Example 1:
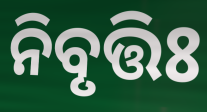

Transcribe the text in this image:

ନିବୃତ୍ତିଃ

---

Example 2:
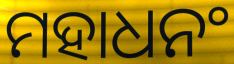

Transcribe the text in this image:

ମହାଧନଂ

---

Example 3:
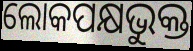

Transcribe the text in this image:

ଲୋକପକ୍ଷଭୁକ୍ତ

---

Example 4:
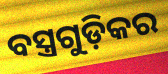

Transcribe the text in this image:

ବସ୍ତ୍ରଗୁଡ଼ିକର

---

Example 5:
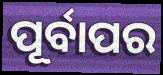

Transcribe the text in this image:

ପୂର୍ବାପର